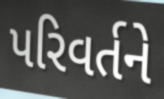
પરિવર્તને